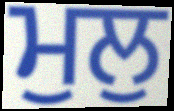
ਮੁਲੁ